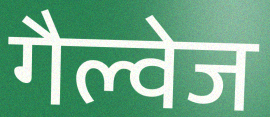
गैल्वेज